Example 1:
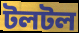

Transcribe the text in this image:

টলটল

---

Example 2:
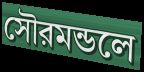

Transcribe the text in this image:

সৌরমন্ডলে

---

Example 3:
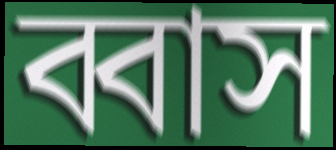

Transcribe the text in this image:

ব্বাস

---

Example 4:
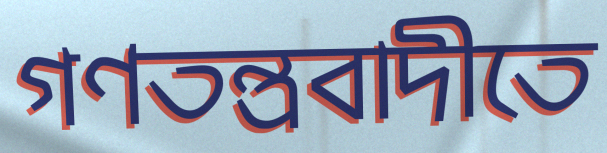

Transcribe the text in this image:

গণতন্ত্রবাদীতে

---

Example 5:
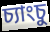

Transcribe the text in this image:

চ্যাংচু